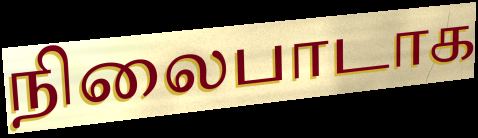
நிலைபாடாக